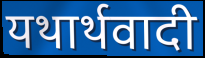
यथार्थवादी